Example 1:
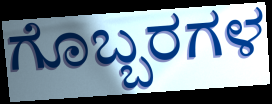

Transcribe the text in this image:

ಗೊಬ್ಬರಗಳ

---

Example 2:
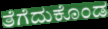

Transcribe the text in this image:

ತೆಗೆದುಕೊಂಡ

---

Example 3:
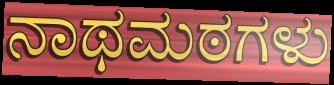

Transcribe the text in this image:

ನಾಥಮಠಗಳು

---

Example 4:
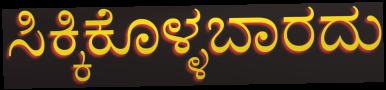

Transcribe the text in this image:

ಸಿಕ್ಕಿಕೊಳ್ಳಬಾರದು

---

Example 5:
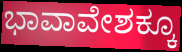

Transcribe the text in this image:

ಭಾವಾವೇಶಕ್ಕೂ